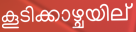
കൂടിക്കാഴ്ചയില്